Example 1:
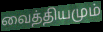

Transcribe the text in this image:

வைத்தியமும்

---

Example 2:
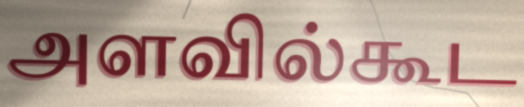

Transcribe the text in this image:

அளவில்கூட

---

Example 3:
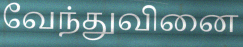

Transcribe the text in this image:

வேந்துவினை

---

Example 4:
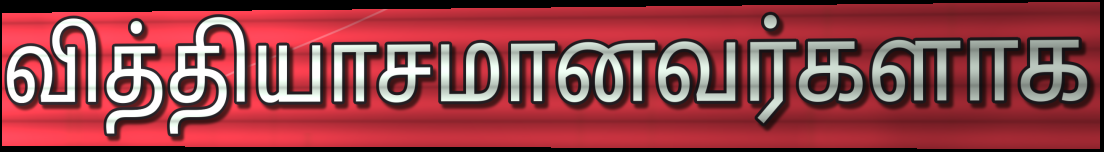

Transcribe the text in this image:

வித்தியாசமானவர்களாக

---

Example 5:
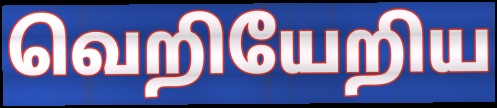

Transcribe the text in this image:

வெறியேறிய